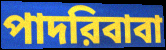
পাদরিবাবা